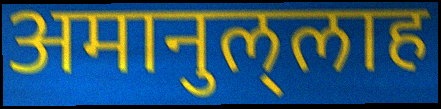
अमानुल्लाह